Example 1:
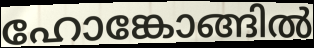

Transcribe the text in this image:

ഹോങ്കോങ്ങിൽ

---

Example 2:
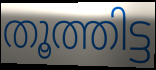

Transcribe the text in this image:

തൂത്തിട്ട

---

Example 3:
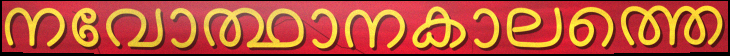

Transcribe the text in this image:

നവോത്ഥാനകാലത്തെ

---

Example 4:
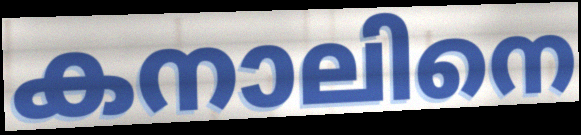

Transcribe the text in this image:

കനാലിനെ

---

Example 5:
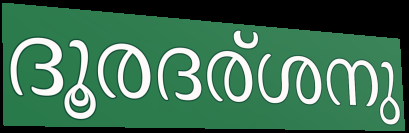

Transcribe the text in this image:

ദൂരദര്ശനു